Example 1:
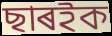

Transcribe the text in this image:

ছাৰইক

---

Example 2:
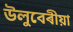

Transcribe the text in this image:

উলুবেৰীয়া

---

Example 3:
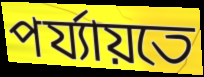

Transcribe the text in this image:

পৰ্য্যায়তে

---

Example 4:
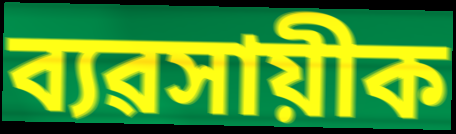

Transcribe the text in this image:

ব্যৱসায়ীক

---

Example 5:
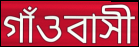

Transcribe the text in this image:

গাঁওবাসী